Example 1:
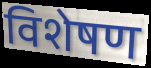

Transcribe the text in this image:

विशेषण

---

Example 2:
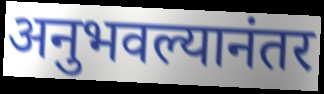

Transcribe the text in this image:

अनुभवल्यानंतर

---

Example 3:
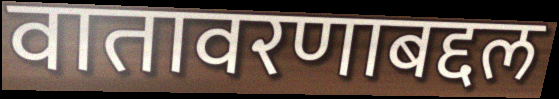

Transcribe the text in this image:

वातावरणाबद्दल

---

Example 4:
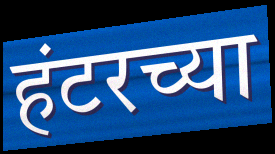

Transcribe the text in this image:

हंटरच्या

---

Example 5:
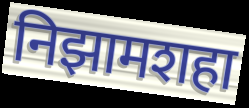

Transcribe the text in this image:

निझामशहा